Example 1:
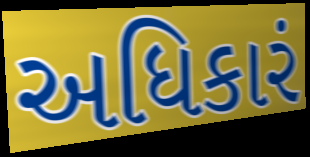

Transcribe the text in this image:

અધિકારં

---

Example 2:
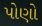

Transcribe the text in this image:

પોણો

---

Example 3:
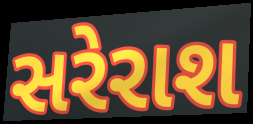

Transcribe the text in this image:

સરેરાશ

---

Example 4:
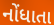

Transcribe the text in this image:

નોંધાતા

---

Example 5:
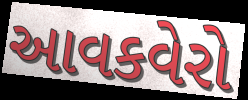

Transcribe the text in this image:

આવકવેરો